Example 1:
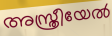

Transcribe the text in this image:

അസ്ത്രീയേൽ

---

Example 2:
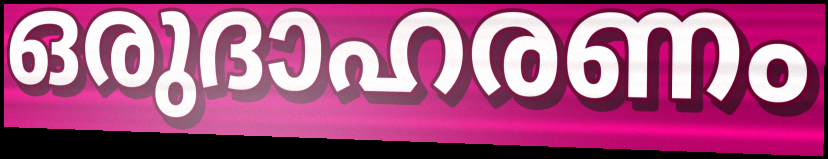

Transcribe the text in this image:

ഒരുദാഹരണം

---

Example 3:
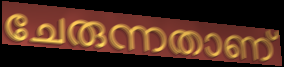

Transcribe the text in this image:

ചേരുന്നതാണ്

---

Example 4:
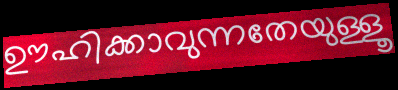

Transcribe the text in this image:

ഊഹിക്കാവുന്നതേയുള്ളൂ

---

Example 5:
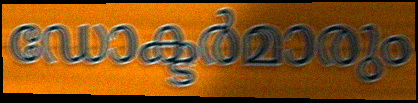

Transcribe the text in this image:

ഡോക്ടർമാരും